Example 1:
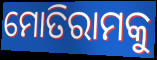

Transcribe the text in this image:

ମୋତିରାମକୁ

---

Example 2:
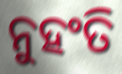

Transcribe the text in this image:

ନୁହଂତି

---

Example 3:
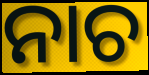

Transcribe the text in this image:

ନାଚ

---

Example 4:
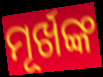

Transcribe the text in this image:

ମୂର୍ଖଙ୍କ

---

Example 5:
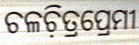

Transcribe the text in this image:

ଚଳଚ଼ିତ୍ରପ୍ରେମୀ